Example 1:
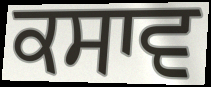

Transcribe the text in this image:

ਕਸਾਵ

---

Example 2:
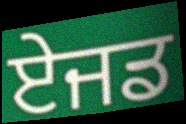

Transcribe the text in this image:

ਏਜਡ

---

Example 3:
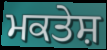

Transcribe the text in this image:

ਮਕਤੇਸ਼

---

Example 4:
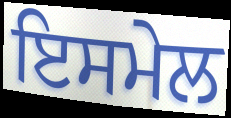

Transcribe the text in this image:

ਇਸਮੇਲ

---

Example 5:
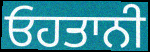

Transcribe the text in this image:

ਓਹਤਾਨੀ